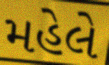
મહેલે